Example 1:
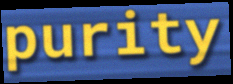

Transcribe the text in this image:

purity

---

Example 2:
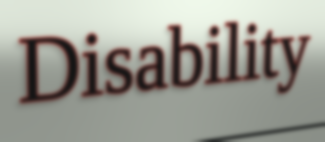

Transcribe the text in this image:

Disability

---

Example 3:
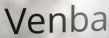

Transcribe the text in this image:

Venba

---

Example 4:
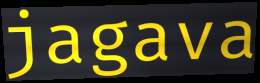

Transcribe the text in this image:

jagava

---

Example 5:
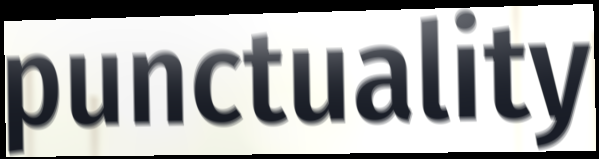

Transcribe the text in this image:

punctuality